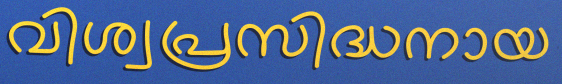
വിശ്വപ്രസിദ്ധനായ